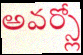
అవర్స్లో